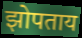
झोपताय